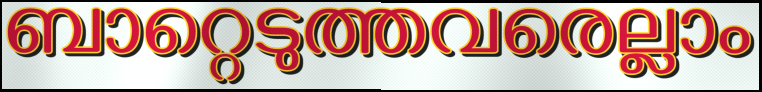
ബാറ്റെടുത്തവരെല്ലാം